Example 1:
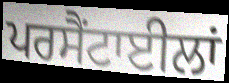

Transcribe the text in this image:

ਪਰਸੈਂਟਾਈਲਾਂ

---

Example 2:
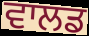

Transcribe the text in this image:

ਵਾਲਡ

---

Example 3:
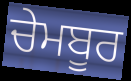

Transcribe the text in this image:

ਚੇਮਬੂਰ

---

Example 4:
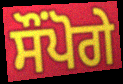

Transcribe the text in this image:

ਸੌਂਪੋਗੇ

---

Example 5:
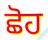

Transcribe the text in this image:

ਛੋਹ